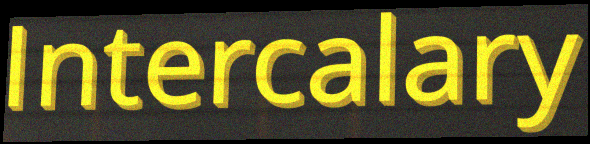
Intercalary